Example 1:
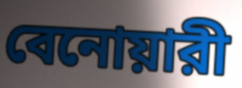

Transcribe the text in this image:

বেনোয়ারী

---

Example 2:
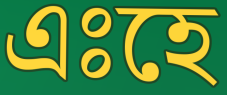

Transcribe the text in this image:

এঃহে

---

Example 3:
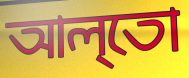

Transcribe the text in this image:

আল্‌তো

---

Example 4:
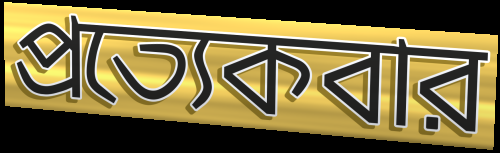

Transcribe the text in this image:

প্রত্যেকবার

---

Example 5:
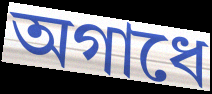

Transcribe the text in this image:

অগাধে